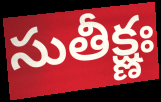
సుతీక్ష్ణః